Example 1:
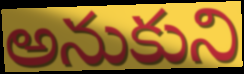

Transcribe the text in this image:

అనుకుని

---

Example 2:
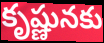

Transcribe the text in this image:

కృష్ణునకు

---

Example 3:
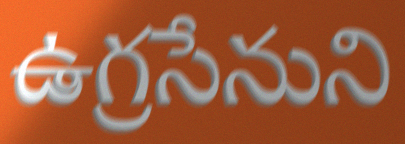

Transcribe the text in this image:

ఉగ్రసేనుని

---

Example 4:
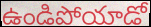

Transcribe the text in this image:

ఉండిపోయాడో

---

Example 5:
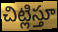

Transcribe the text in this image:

చిట్లిస్తూ